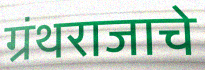
ग्रंथराजाचे